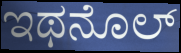
ಇಥನೊಲ್